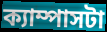
ক্যাম্পাসটা